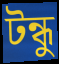
টন্ধু